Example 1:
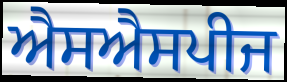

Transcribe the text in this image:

ਐਸਐਸਪੀਜ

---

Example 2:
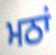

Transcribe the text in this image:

ਮਠਾਂ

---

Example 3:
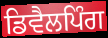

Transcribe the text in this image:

ਡਿਵੈਲਪਿੰਗ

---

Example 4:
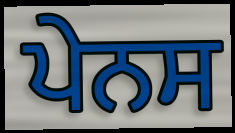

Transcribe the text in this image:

ਪੇਨਸ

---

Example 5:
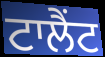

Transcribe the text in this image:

ਟਾਲੈਂਟ